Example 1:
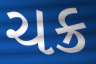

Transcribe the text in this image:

ચક્ર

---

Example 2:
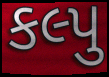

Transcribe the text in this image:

કલ્પુ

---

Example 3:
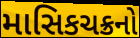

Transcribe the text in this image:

માસિકચક્રનો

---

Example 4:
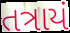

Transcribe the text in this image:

તત્રાયં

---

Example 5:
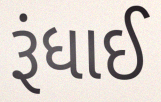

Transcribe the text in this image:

રૂંધાઈ